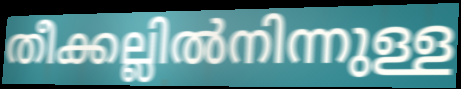
തീക്കല്ലിൽനിന്നുള്ള